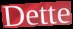
Dette